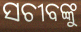
ସଚୀବଙ୍କୁ